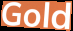
Gold